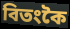
বিতংকৈ